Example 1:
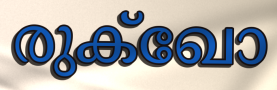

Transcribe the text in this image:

രുക്ഖോ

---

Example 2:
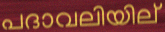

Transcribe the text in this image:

പദാവലിയില്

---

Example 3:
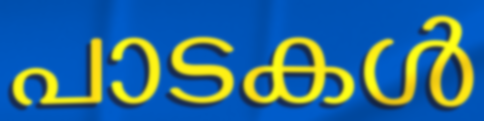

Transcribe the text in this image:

പാടകൾ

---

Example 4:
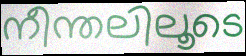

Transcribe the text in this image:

നീന്തലിലൂടെ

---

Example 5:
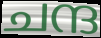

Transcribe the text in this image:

ചന്ദ